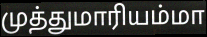
முத்துமாரியம்மா